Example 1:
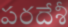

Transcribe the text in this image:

పరదేశీ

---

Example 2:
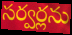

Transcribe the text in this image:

సర్వర్లను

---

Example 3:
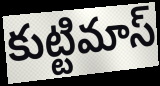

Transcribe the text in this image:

కుట్టిమాస్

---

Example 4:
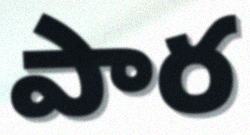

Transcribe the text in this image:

పార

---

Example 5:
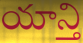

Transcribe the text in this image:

యాన్తి